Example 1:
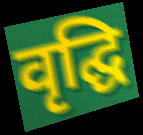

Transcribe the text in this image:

वृद्घि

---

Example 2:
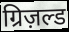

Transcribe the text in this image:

ग्रिज़ल्ड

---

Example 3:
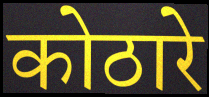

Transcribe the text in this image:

कोठारे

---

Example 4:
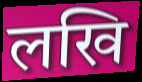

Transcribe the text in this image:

लखि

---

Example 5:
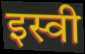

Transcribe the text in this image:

इस्वी